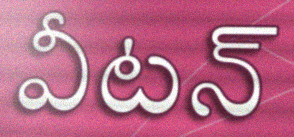
వీటన్